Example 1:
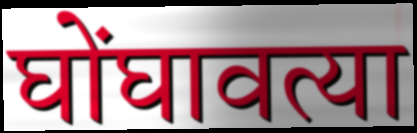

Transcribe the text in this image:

घोंघावत्या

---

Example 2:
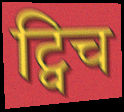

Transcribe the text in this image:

ट्विच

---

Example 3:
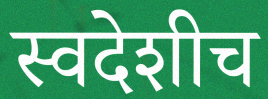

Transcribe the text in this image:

स्वदेशीच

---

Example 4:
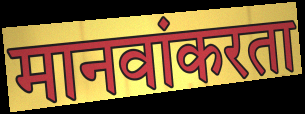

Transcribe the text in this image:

मानवांकरता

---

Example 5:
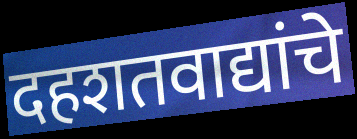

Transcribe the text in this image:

दहशतवाद्यांचे